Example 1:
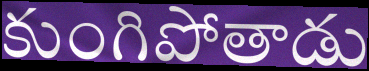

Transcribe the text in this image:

కుంగిపోతాడు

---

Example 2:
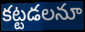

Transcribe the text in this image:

కట్టడలనూ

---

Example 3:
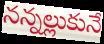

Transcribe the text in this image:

నన్నల్లుకునే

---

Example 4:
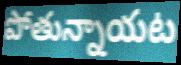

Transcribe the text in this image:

పోతున్నాయట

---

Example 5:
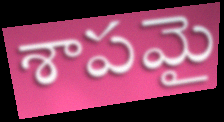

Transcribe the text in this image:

శాపమై